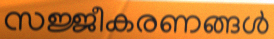
സജ്ജീകരണങ്ങൾ